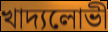
খাদ্যলোভী